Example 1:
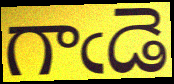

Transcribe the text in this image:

గాఁడె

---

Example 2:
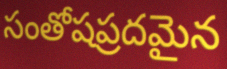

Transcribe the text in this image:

సంతోషప్రదమైన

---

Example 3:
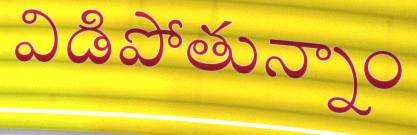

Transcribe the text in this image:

విడిపోతున్నాం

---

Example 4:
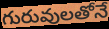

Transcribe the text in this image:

గురువులతోనే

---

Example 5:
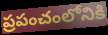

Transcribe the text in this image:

ప్రపంచంలోనికి